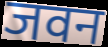
जवन